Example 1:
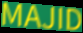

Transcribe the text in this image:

MAJID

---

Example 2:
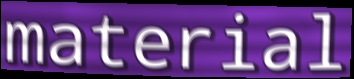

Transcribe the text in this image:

material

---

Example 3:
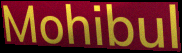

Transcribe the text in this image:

Mohibul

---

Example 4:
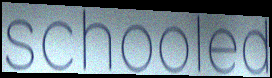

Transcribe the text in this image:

schooled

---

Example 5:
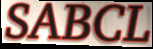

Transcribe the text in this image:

SABCL